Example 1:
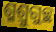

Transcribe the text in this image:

ଶ୍ମଶ୍ରୁଗୁଚ୍ଛ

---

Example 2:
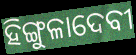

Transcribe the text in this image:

ହିଙ୍ଗୁଳାଦେବୀ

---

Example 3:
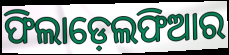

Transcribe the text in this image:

ଫିଲାଡ଼େଲଫିଆର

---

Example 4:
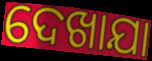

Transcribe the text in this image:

ଦେଖାଯା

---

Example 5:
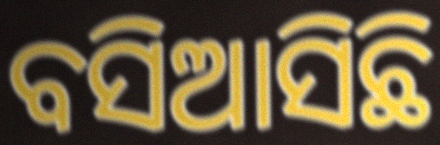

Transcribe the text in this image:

ବସିଆସିଛି